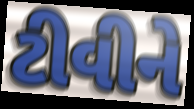
ટીવીને